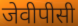
जेवीपीसी